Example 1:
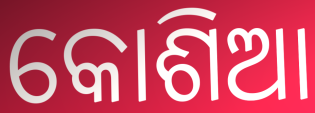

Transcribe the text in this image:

କୋଶିଆ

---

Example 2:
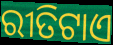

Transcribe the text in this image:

ରୀତିଟାଏ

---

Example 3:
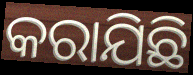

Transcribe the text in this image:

କରାଯିଛି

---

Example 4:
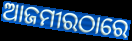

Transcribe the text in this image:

ଆଜମୀରଠାରେ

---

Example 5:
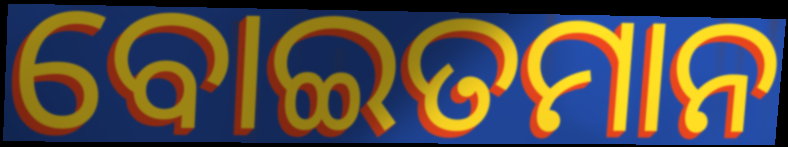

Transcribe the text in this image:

ବୋଇତମାନ